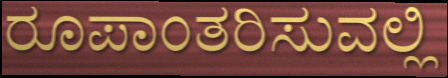
ರೂಪಾಂತರಿಸುವಲ್ಲಿ